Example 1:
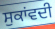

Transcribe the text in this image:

ਸੁਕਾਂਵਦੀ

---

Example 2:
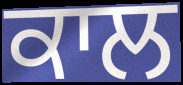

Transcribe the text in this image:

ਕਾਲ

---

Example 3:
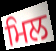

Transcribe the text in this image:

ਮਿਲ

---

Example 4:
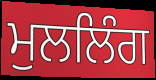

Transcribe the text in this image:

ਮੁਲਲਿੰਗ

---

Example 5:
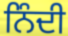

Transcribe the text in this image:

ਨਿੰਦੀ